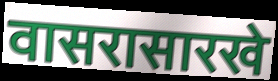
वासरासारखे